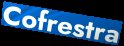
Cofrestra